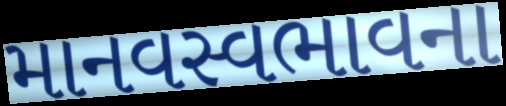
માનવસ્વભાવના